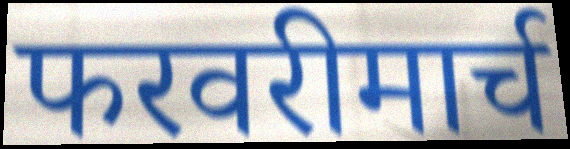
फरवरीमार्च